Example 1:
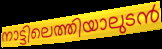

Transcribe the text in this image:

നാട്ടിലെത്തിയാലുടൻ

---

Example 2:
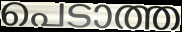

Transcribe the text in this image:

പെടാത്ത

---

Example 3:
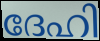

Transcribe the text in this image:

ദേഹി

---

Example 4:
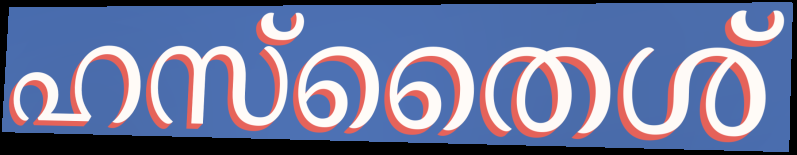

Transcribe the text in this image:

ഹസ്തൈശ്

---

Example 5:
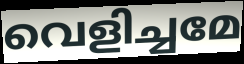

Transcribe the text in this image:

വെളിച്ചമേ